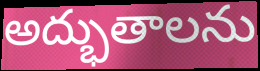
అద్భుతాలను